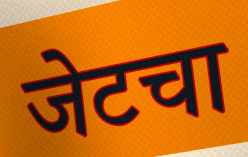
जेटचा